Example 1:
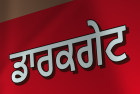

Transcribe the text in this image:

ਡਾਰਕਗੇਟ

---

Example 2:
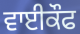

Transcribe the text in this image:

ਵਾਈਕੌਫ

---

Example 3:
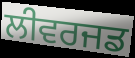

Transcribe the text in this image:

ਲੀਵਰਜਡ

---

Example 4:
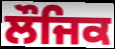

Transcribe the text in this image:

ਲੌਜਿਕ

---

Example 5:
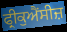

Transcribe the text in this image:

ਫ੍ਰੀਕੁਐਂਸੀਜ਼